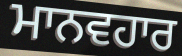
ਮਾਨਵਹਾਰ